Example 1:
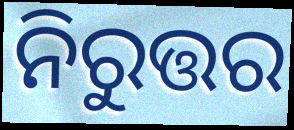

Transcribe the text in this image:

ନିରୁତ୍ତର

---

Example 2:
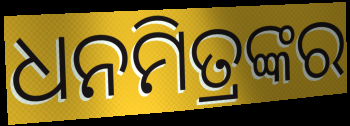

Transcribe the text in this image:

ଧନମିତ୍ରଙ୍କର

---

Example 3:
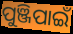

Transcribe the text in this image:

ପୁଞ୍ଜିପାଇଁ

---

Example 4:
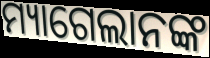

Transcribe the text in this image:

ମ୍ୟାଗେଲାନଙ୍କ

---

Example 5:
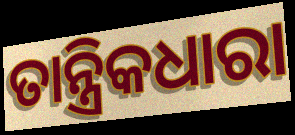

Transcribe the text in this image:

ତାନ୍ତ୍ରିକଧାରା